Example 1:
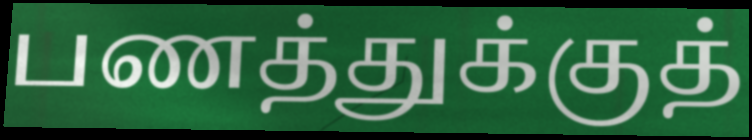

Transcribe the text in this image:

பணத்துக்குத்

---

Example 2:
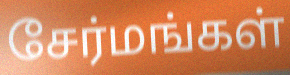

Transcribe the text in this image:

சேர்மங்கள்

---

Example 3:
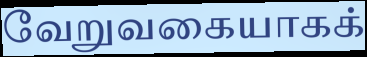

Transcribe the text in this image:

வேறுவகையாகக்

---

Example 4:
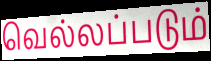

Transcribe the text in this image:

வெல்லப்படும்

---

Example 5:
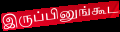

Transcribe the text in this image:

இருப்பினுங்கூட